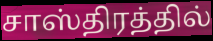
சாஸ்திரத்தில்